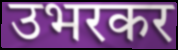
उभरकर